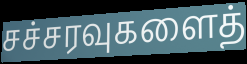
சச்சரவுகளைத்